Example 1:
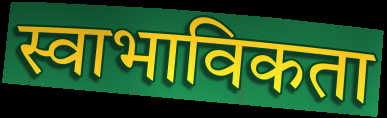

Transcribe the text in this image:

स्वाभाविकता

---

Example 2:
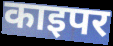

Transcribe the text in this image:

काइपर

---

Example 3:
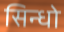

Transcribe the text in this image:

सिन्धो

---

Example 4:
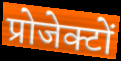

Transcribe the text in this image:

प्रोजेक्टों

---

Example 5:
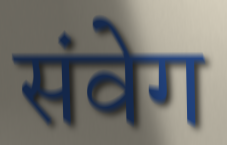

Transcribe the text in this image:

संवेग